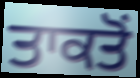
ਤਾਕਤੋਂ